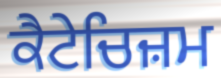
ਕੈਟੇਚਿਜ਼ਮ